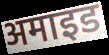
अमाइड